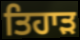
ਤਿਹਾੜ